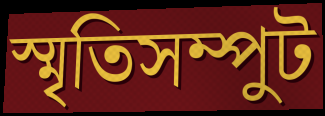
স্মৃতিসম্পুট